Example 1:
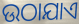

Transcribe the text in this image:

ଉଠାଯାଏ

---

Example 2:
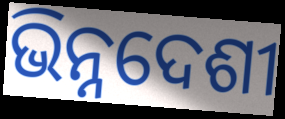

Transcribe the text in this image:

ଭିନ୍ନଦେଶୀ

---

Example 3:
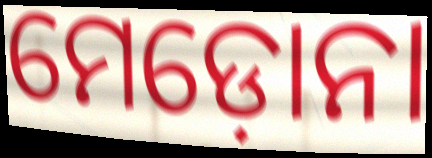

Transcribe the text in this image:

ମେଡ଼ୋନା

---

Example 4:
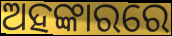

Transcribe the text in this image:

ଅହଙ୍କାରରେ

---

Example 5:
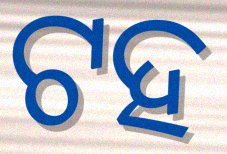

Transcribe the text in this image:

ଟହ